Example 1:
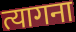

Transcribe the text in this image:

त्यागना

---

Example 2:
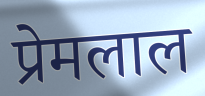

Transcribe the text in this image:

प्रेमलाल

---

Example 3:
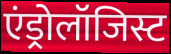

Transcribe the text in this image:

एंड्रोलॉजिस्ट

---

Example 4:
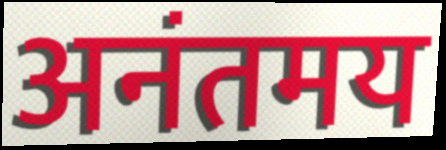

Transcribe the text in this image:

अनंतमय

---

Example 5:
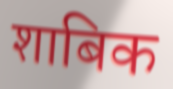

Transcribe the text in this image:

शाबिक